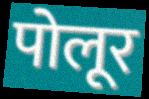
पोलूर